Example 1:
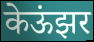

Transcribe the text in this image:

केऊंझर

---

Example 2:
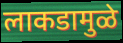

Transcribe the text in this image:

लाकडामुळे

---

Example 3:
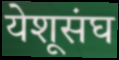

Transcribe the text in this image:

येशूसंघ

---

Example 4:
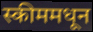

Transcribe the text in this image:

स्कीममधून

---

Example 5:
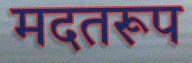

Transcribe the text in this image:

मदतरूप